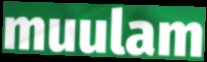
muulam